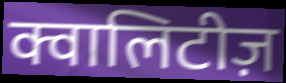
क्वालिटीज़